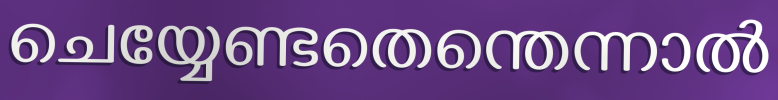
ചെയ്യേണ്ടതെന്തെന്നാൽ